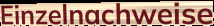
Einzelnachweise